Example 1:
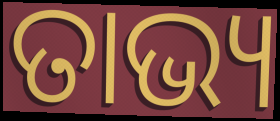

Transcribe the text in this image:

ତାଭ୍ୟ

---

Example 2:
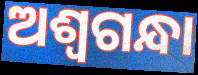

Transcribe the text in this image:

ଅଶ୍ୱଗନ୍ଧା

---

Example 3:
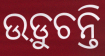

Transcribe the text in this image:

ଉଡ଼ୁଚନ୍ତି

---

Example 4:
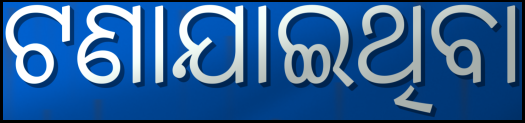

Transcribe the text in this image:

ଟଣାଯାଇଥିବା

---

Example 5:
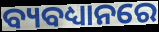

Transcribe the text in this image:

ବ୍ୟବଧ୍ୟାନରେ